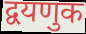
द्वयणुक